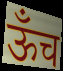
ऊँच